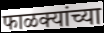
फाळक्यांच्या